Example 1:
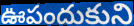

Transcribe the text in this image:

ఊపందుకుని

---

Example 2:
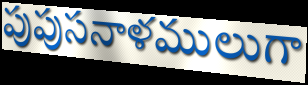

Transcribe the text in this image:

పుపుసనాళములుగా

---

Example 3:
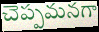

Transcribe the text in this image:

చెప్పమనగా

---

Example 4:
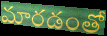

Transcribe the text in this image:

మారడంతో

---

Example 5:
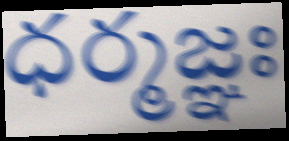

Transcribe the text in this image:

ధర్మజ్ఞః